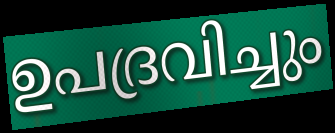
ഉപദ്രവിച്ചും